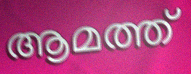
ആമത്ത്